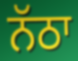
ਨੱਠਾ